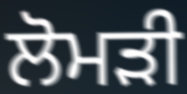
ਲੋਮੜੀ